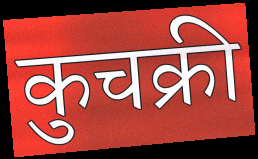
कुचक्री